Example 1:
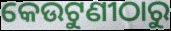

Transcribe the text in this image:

କେଉଟୁଣୀଠାରୁ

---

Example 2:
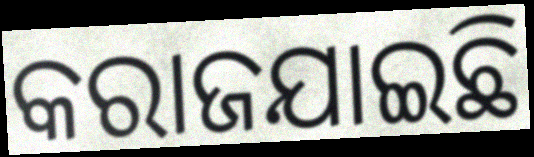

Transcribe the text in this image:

କରାଜଯାଇଛି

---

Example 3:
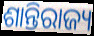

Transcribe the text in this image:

ଶାନ୍ତିରାଜ୍ୟ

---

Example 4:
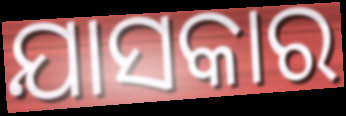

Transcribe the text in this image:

ଯାସକାର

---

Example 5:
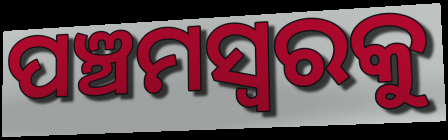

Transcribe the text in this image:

ପଞ୍ଚମସ୍ୱରକୁ